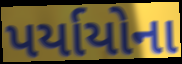
પર્યાયોના